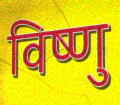
विष्‍णु